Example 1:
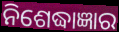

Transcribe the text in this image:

ନିଶେଦ୍ଧାଜ୍ଞାର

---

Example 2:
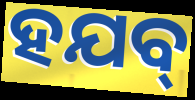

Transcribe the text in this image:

ହଯବ୍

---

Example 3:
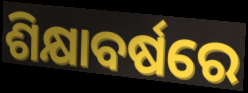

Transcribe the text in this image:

ଶିକ୍ଷାବର୍ଷରେ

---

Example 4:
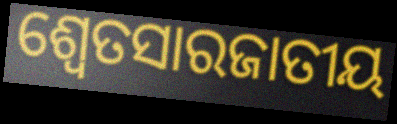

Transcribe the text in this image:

ଶ୍ଵେତସାରଜାତୀୟ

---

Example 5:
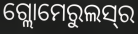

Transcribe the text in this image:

ଗ୍ଲୋମେରୁଲସ୍‌ର